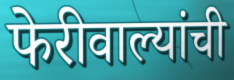
फेरीवाल्यांची